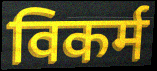
विकर्म